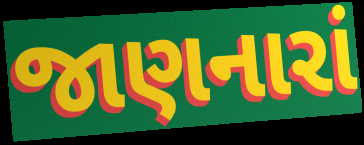
જાણનારાં